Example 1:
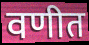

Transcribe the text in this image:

वणीत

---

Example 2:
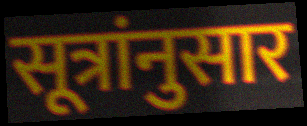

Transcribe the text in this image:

सूत्रांनुसार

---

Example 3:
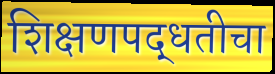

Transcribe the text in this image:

शिक्षणपद्धतीचा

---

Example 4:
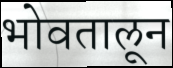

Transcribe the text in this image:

भोवतालून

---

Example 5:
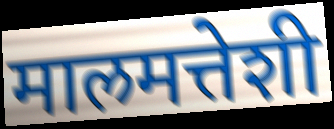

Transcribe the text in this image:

मालमत्तेशी